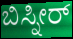
ಬಿಸ್ನೀರ್